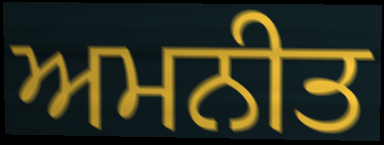
ਅਮਨੀਤ